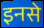
इनसे